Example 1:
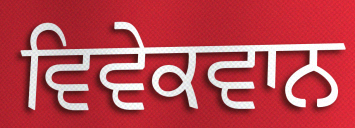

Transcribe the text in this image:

ਵਿਵੇਕਵਾਨ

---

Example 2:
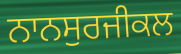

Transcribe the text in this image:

ਨਾਨਸੁਰਜੀਕਲ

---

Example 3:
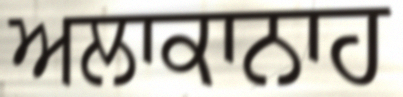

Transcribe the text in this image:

ਅਲਾਕਾਨਾਹ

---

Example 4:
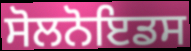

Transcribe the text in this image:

ਸੋਲਨੋਇਡਸ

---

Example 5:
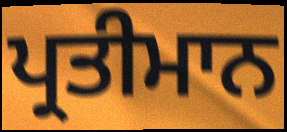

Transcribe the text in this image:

ਪ੍ਰਤੀਮਾਨ